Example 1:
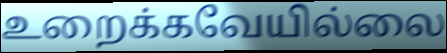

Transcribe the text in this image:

உறைக்கவேயில்லை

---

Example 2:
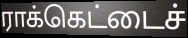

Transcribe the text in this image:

ராக்கெட்டைச்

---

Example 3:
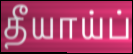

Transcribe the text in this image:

தீயாய்ப்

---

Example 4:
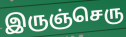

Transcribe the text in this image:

இருஞ்செரு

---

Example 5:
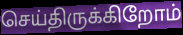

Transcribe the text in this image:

செய்திருக்கிறோம்